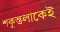
শকুন্তলাকেই